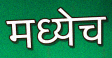
मध्येच